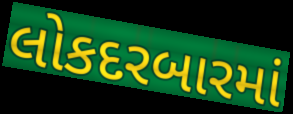
લોકદરબારમાં